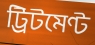
ট্রিটমেণ্ট